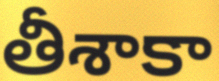
తీశాకా